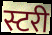
स्टरी